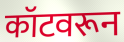
कॉटवरून